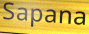
Sapana